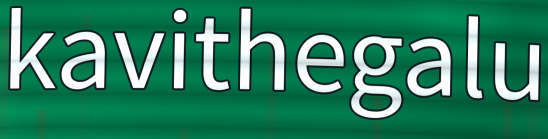
kavithegalu